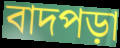
বাদপড়া